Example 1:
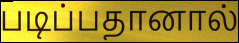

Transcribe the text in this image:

படிப்பதானால்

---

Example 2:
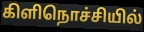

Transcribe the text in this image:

கிளிநொச்சியில்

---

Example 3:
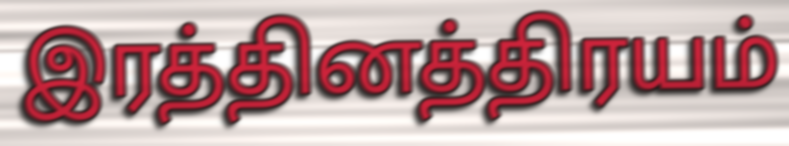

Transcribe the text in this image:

இரத்தினத்திரயம்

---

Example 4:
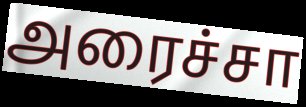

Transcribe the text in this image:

அரைச்சா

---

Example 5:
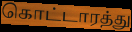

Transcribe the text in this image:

கொட்டாரத்து